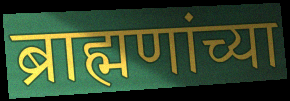
ब्राह्मणांच्या